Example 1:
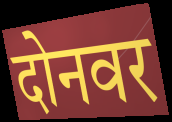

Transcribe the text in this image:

दोनवर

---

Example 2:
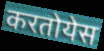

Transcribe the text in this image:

करतोयेस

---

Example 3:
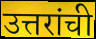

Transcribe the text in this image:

उत्तरांची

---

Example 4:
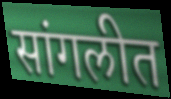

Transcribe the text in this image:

सांगलीत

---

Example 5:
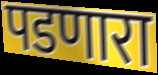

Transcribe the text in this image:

पडणारा